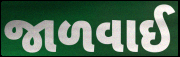
જાળવાઈ